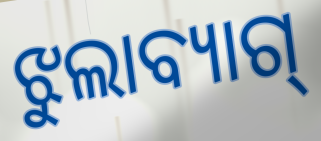
ଝୁଲାବ୍ୟାଗ୍